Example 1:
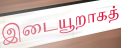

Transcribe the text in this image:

இடையூறாகத்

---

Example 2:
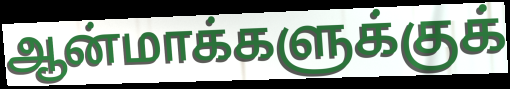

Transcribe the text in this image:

ஆன்மாக்களுக்குக்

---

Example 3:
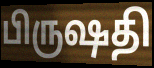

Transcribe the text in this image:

பிருஷதி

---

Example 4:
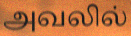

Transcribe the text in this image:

அவலில்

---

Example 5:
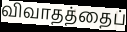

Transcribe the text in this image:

விவாதத்தைப்